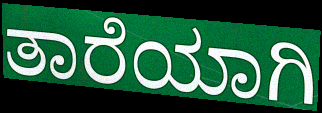
ತಾರೆಯಾಗಿ